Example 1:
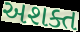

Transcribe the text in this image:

અશક્ત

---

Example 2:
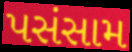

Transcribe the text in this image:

પસંસામ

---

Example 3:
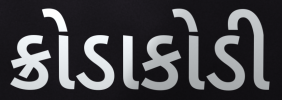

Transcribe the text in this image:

ક્રોડાકોડી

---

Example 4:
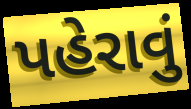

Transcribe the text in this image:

પહેરાવું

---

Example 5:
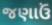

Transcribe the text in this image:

જણાઉં